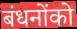
बंधनोंको